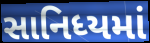
સાનિધ્યમાં